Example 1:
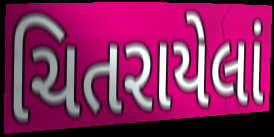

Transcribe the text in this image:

ચિતરાયેલાં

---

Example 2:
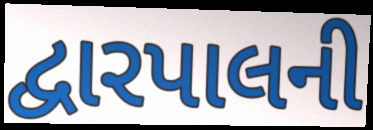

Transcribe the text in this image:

દ્વારપાલની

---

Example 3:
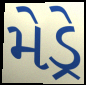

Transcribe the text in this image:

મેડ્રે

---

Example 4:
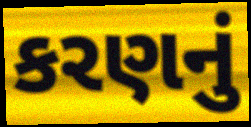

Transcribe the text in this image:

કરણનું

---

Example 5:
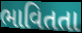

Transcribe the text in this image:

ભાવિતતા